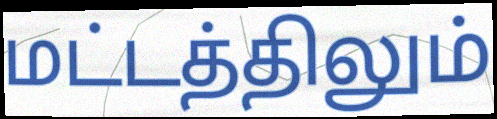
மட்டத்திலும்